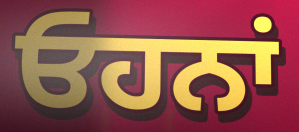
ਓਹਨਾਂ